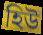
হিউ